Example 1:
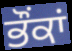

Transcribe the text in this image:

ਭੌਂਕਾਂ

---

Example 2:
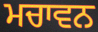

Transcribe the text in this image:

ਮਚਾਵਨ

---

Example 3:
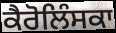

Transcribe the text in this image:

ਕੈਰੋਲਿੰਸਕਾ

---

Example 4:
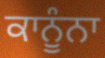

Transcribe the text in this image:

ਕਾਨੂੰਨਾ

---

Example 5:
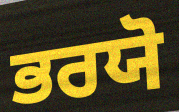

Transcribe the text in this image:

ਭਰਯੋ